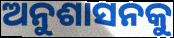
ଅନୁଶାସନକୁ